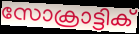
സോക്രാട്ടിക്